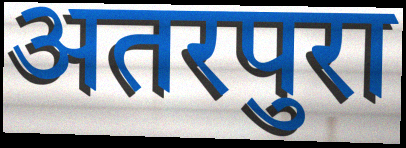
अतरपुरा